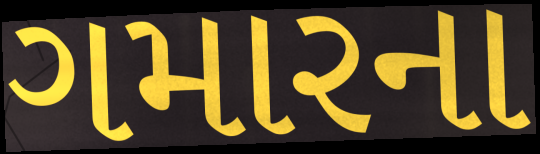
ગમારના